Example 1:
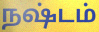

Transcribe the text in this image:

நஷ்டம்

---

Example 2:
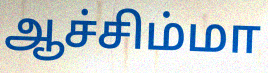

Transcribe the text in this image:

ஆச்சிம்மா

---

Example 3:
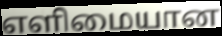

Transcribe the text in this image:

எளிமையான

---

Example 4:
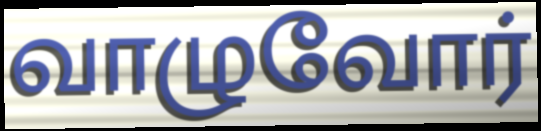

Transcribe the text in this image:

வாழுவோர்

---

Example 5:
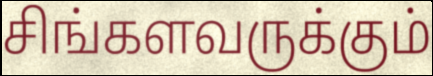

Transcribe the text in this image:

சிங்களவருக்கும்